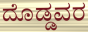
ದೊಡ್ಡವರ